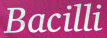
Bacilli